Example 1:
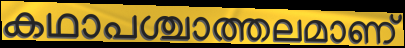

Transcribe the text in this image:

കഥാപശ്ചാത്തലമാണ്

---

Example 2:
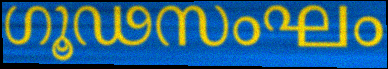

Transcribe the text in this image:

ഗൂഢസംഘം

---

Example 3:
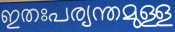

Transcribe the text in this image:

ഇതഃപര്യന്തമുള്ള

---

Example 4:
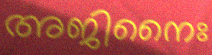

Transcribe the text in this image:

അജിനൈഃ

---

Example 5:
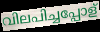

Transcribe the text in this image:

വിലപിച്ചപ്പോള്